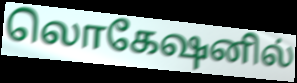
லொகேஷனில்